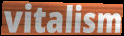
vitalism